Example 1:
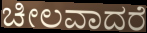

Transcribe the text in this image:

ಚೀಲವಾದರೆ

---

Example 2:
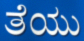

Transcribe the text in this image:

ತೆಯು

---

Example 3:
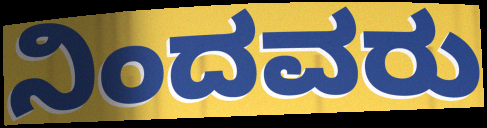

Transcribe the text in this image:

ನಿಂದವರು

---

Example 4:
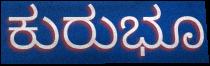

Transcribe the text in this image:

ಕುರುಭೂ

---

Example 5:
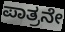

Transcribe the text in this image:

ಪಾತ್ರನೇ